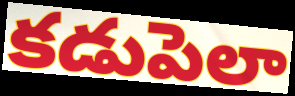
కడుపెలా